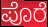
ಪೊರೆ